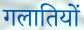
गलातियों